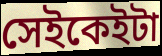
সেইকেইটা